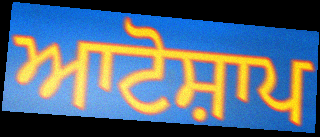
ਆਟੋਸ਼ਾਪ